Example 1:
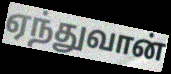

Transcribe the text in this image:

ஏந்துவான்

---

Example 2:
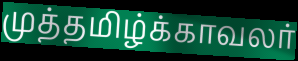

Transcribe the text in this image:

முத்தமிழ்க்காவலர்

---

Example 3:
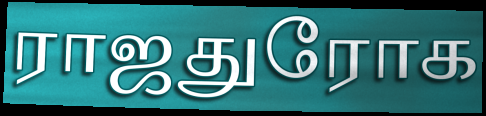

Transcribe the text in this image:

ராஜதுரோக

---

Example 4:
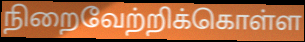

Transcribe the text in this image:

நிறைவேற்றிக்கொள்ள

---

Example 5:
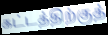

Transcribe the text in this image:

கட்டத்திற்குத்